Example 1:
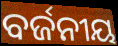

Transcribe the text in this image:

ବର୍ଜନୀୟ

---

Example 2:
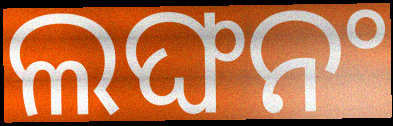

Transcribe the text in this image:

ଲଙ୍ଘନଂ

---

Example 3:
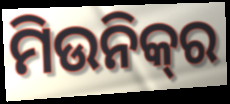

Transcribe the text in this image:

ମିଉନିକ୍‌ର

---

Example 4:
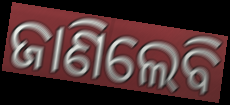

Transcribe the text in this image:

ଜାଣିଲେବି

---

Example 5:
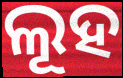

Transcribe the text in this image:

ଲୂହ